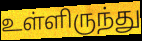
உள்ளிருந்து